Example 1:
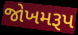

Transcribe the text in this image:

જોખમરૂપ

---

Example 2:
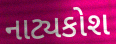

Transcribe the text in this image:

નાટ્યકોશ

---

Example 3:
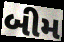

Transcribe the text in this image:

બીમ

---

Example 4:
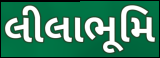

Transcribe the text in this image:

લીલાભૂમિ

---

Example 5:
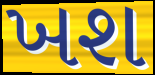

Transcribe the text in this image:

ખશ